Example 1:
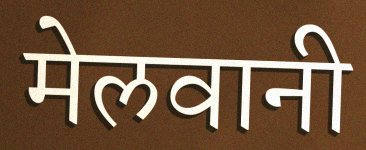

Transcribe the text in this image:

मेलवानी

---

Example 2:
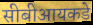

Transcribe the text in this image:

सीबीआयकडे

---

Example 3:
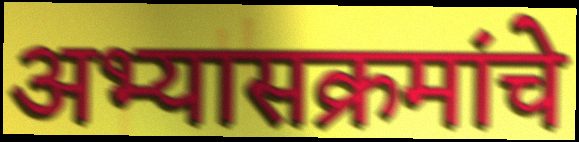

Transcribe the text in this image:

अभ्यासक्रमांचे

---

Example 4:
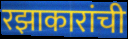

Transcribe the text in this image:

रझाकारांची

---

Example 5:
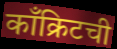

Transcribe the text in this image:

काँक्रिटची